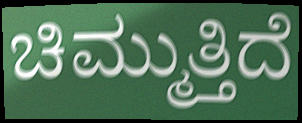
ಚಿಮ್ಮುತ್ತಿದೆ